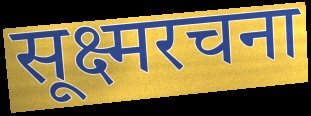
सूक्ष्मरचना